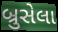
બ્રુસેલા